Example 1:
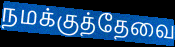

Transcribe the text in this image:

நமக்குத்தேவை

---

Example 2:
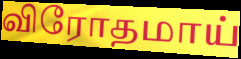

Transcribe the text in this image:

விரோதமாய்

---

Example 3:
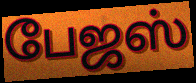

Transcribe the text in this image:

பேஜஸ்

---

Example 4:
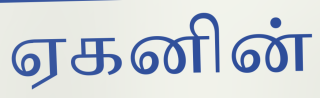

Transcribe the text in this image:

ஏகனின்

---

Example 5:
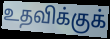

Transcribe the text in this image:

உதவிக்குக்